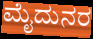
ಮೈದುನರ